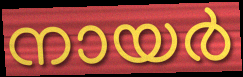
നായർ